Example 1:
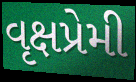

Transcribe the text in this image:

વૃક્ષપ્રેમી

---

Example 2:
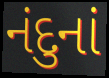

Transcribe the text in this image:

નંદુનાં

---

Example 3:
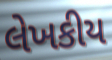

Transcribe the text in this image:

લેખકીય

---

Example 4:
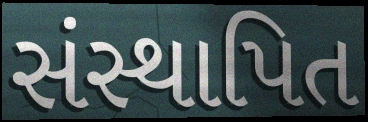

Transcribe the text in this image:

સંસ્થાપિત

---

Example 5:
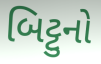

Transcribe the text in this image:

બિટ્ટુનો